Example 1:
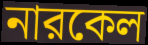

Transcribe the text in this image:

নারকেল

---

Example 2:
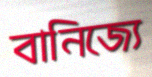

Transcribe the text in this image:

বানিজ্যে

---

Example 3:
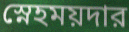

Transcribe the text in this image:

স্নেহময়দার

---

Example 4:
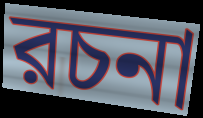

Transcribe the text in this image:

রচনা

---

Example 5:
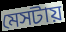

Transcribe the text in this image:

মেসটায়